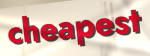
cheapest